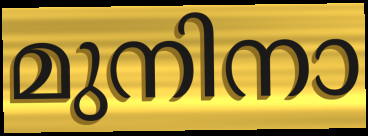
മുനിനാ